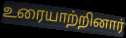
உரையாற்றினார்